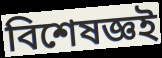
বিশেষজ্ঞই